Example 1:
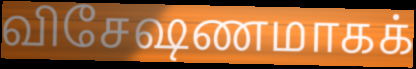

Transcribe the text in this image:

விசேஷணமாகக்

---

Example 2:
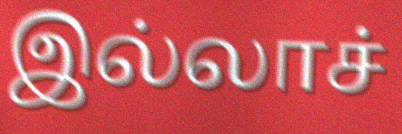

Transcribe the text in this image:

இல்லாச்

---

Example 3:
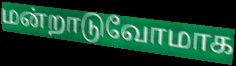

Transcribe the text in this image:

மன்றாடுவோமாக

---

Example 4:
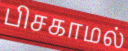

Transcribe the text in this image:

பிசகாமல்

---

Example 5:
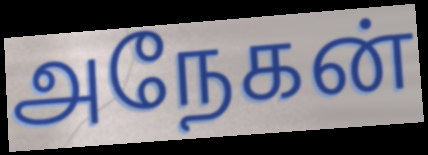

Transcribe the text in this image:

அநேகன்